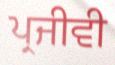
ਪ੍ਰਜੀਵੀ